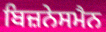
ਬਿਜ਼ਨੇਸਮੈਨ